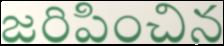
జరిపించిన